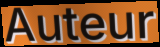
Auteur